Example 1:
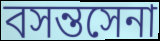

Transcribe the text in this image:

বসন্তসেনা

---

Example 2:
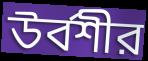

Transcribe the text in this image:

উর্বশীর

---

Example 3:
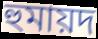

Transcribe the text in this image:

হুমায়দ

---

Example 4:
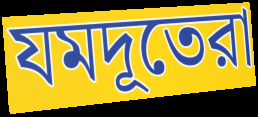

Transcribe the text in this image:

যমদূতেরা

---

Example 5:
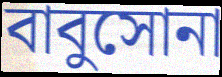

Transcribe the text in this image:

বাবুসোনা